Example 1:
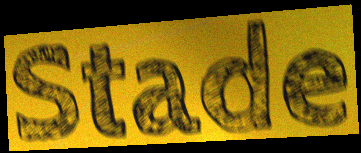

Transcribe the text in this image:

Stade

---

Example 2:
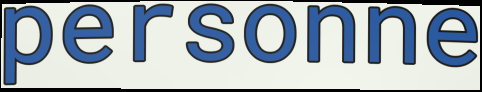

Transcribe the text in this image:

personne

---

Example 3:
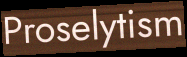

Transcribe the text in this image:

Proselytism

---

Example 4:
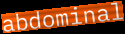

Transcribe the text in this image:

abdominal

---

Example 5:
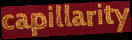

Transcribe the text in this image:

capillarity